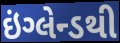
ઇંગ્લેન્ડથી